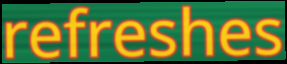
refreshes